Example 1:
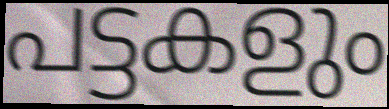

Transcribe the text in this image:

പട്ടകളും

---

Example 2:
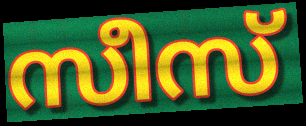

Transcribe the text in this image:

സീസ്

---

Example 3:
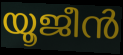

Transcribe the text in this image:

യൂജീൻ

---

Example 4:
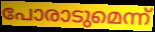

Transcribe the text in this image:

പോരാടുമെന്ന്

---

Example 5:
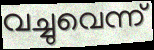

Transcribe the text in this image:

വച്ചുവെന്ന്